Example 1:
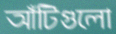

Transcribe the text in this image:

আঁটিগুলো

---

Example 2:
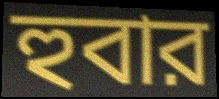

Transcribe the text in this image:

হুবার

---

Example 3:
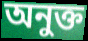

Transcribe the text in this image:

অনুক্ত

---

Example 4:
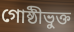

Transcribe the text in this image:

গোষ্ঠীভুক্ত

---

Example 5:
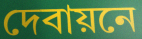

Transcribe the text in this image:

দেবায়নে